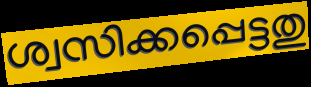
ശ്വസിക്കപ്പെട്ടതു